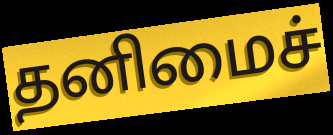
தனிமைச்